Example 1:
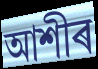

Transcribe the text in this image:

আশীৰ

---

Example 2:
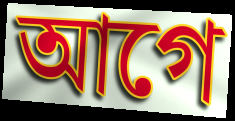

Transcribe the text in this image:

আগে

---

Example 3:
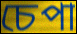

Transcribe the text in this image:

চেপা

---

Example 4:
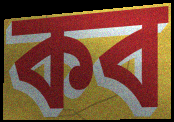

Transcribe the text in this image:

কব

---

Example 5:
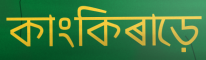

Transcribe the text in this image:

কাংকিৰাড়ে